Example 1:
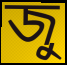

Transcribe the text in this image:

জু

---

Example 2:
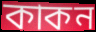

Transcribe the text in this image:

কাকন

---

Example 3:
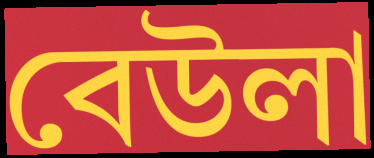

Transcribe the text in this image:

বেউলা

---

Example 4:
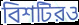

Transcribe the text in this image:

বিশটিরও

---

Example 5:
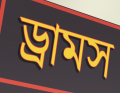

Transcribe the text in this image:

ড্রামস